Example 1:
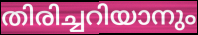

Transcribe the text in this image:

തിരിച്ചറിയാനും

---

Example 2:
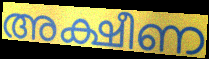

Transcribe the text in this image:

അക്ഷീണ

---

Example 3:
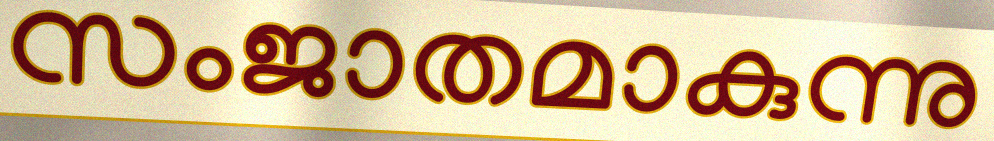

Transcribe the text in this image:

സംജാതമാകുന്നു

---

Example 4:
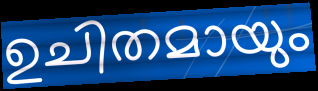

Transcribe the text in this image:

ഉചിതമായും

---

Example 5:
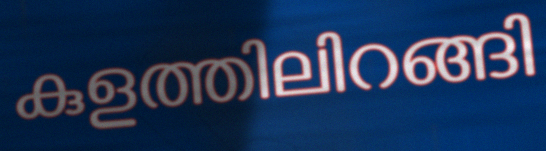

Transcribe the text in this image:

കുളത്തിലിറങ്ങി